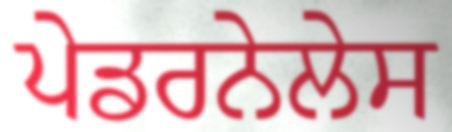
ਪੇਡਰਨੇਲੇਸ